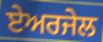
ਏਅਰਜੇਲ